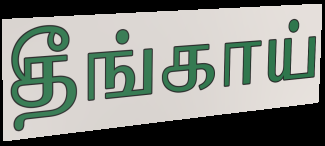
தீங்காய்